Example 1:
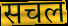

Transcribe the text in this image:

सचल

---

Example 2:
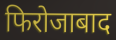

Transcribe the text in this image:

फिरोजाबाद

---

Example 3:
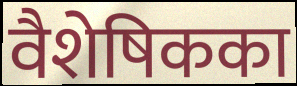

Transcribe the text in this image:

वैशेषिकका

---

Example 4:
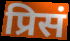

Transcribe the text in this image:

प्रिसं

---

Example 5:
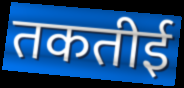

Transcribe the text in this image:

तकतीई